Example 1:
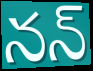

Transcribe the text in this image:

నన్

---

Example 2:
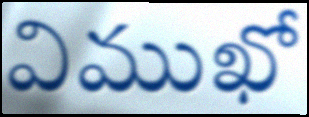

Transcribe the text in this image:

విముఖో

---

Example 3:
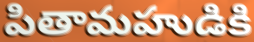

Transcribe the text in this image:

పితామహుడికి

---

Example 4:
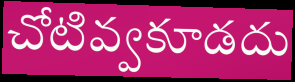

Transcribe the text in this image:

చోటివ్వకూడదు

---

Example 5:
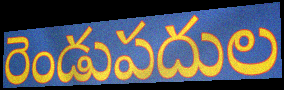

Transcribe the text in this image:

రెండుపదుల